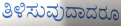
ತಿಳಿಸುವುದಾದರೂ